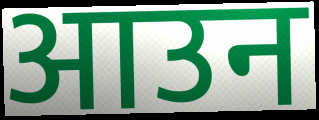
आउन